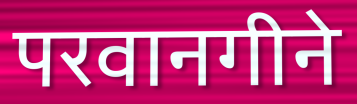
परवानगीने